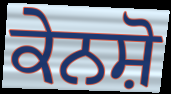
ਕੇਨਸ਼ੋ